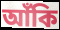
আঁকি